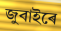
জুবাইৰে